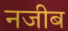
नजीब